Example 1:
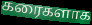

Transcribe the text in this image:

கரைகளாக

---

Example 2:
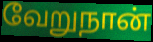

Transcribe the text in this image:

வேறுநான்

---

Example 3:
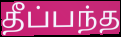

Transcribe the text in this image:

தீப்பந்த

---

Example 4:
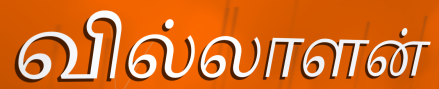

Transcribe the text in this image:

வில்லாளன்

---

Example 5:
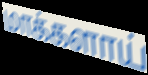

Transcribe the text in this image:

மாக்களாய்